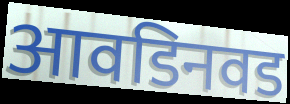
आवडिनवड